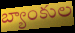
బ్యాంకుల